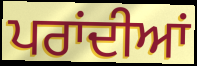
ਪਰਾਂਦੀਆਂ